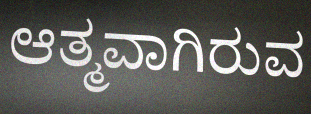
ಆತ್ಮವಾಗಿರುವ